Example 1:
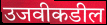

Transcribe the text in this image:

उजवीकडील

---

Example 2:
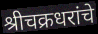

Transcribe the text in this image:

श्रीचक्रधरांचे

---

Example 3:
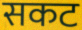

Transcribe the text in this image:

सकट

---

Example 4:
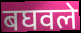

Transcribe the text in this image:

बघवले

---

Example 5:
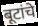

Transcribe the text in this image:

बूटांचे